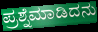
ಪ್ರಶ್ನೆಮಾಡಿದನು